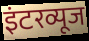
इंटरव्यूज